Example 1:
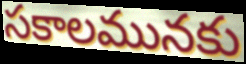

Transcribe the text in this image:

సకాలమునకు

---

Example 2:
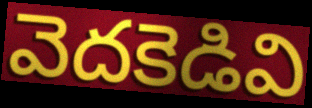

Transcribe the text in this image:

వెదకెడివి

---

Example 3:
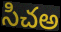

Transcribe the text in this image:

సిచఅ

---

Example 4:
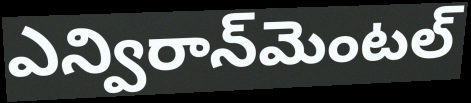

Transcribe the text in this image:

ఎన్విరాన్‌మెంటల్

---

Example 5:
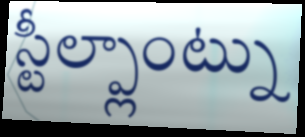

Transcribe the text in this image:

స్టీల్ప్లాంట్ను